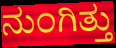
ನುಂಗಿತ್ತು